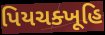
પિયચક્ખૂહિ